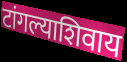
टांगल्याशिवाय